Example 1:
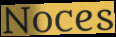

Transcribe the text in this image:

Noces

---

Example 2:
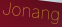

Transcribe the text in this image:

Jonang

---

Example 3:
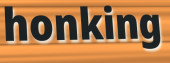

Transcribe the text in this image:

honking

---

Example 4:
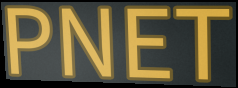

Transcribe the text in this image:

PNET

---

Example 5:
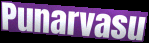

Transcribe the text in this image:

Punarvasu